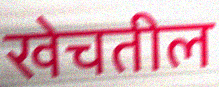
खेचतील